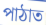
পাঠাত